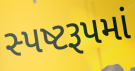
સ્પષ્ટરૂપમાં